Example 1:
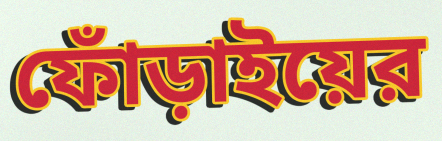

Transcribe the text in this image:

ফোঁড়াইয়ের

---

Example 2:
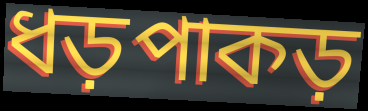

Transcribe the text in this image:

ধড়পাকড়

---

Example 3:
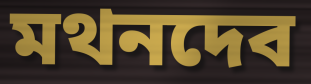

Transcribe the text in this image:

মথনদেব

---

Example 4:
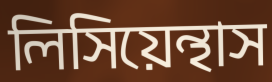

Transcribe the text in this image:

লিসিয়েন্থাস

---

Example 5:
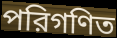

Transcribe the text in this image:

পরিগণিত